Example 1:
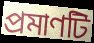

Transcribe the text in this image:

প্ৰমাণটি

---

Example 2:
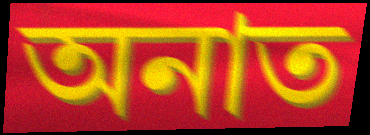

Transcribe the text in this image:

অনাত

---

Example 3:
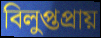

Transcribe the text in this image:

বিলুপ্তপ্ৰায়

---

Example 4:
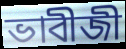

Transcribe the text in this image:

ভাবীজী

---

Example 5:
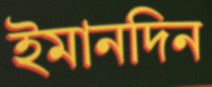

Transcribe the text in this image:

ইমানদিন